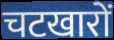
चटखारों